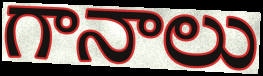
గానాలు